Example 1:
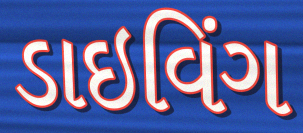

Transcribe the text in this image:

ડાઇવિંગ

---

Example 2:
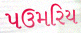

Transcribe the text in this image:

પઉમરિય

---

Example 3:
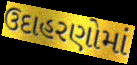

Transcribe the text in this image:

ઉદાહરણોમાં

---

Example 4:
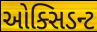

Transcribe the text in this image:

ઓક્સિડન્ટ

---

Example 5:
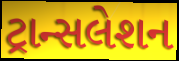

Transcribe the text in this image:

ટ્રાન્સલેશન